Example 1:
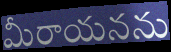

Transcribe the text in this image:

మీరాయనను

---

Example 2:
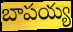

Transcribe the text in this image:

బాపయ్య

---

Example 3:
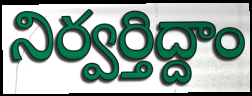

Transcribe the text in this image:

నిర్వర్తిద్దాం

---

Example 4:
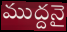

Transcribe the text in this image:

ముద్దనై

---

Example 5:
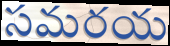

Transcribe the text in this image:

సమరయ